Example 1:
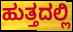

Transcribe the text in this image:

ಹುತ್ತದಲ್ಲಿ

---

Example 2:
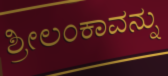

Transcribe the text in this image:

ಶ್ರೀಲಂಕಾವನ್ನು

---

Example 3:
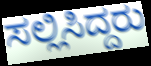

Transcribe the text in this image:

ಸಲ್ಲಿಸಿದ್ದರು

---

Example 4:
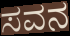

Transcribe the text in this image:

ಸವನ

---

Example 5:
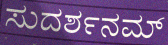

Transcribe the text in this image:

ಸುದರ್ಶನಮ್